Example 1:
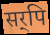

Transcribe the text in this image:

सर्पि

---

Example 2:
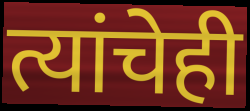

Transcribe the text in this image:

त्यांचेही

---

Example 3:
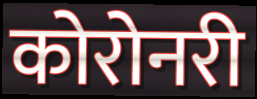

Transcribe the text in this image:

कोरोनरी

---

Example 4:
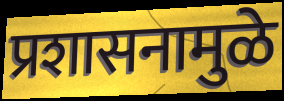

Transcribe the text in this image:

प्रशासनामुळे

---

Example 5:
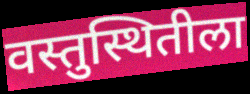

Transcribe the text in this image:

वस्तुस्थितीला